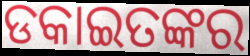
ଡକାଇତଙ୍କର